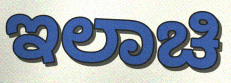
ಇಲಾಚಿ